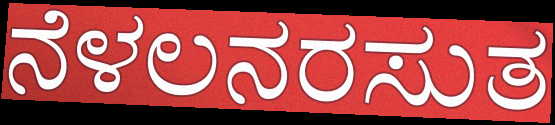
ನೆಳಲನರಸುತ